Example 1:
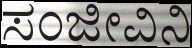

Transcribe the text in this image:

ಸಂಜೀವಿನಿ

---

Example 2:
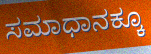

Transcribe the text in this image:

ಸಮಾಧಾನಕ್ಕೂ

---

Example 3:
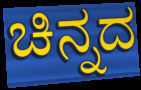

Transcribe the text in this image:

ಚಿನ್ನದ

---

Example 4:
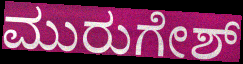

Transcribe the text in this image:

ಮುರುಗೇಶ್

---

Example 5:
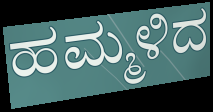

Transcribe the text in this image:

ಹಮ್ಮಳಿದ